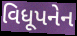
વિધૂપનેન